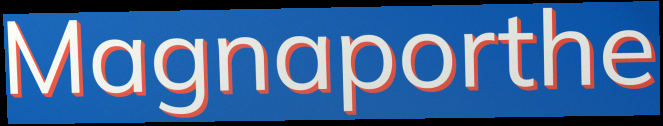
Magnaporthe